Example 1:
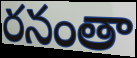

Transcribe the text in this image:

రనంతా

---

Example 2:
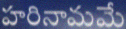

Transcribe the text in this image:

హరినామమే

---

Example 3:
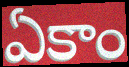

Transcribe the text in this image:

ఏకాం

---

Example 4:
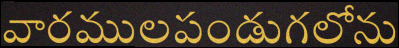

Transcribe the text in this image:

వారములపండుగలోను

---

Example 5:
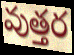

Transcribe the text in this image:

వుత్తర